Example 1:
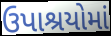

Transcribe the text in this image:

ઉપાશ્રયોમાં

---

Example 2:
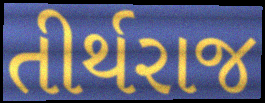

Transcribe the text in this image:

તીર્થરાજ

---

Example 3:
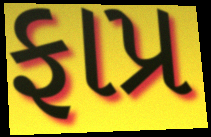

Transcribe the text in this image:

ફાપ્ર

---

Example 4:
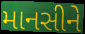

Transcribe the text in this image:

માનસીને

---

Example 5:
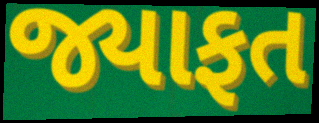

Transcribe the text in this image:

જ્યાફત